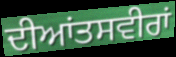
ਦੀਆਂਤਸਵੀਰਾਂ